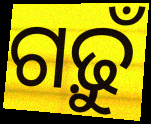
ଗଢ଼ୁଁ